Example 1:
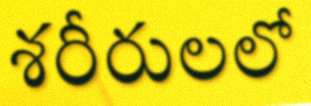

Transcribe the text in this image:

శరీరులలో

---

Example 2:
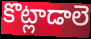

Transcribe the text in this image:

కొట్లాడాలె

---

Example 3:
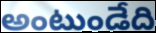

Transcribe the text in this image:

అంటుండేది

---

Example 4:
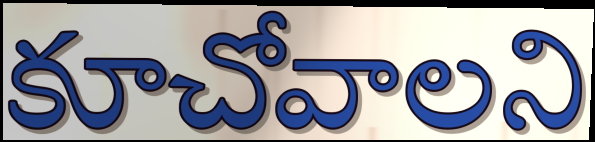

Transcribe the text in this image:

కూచోవాలని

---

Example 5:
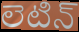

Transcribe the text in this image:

లెటిన్